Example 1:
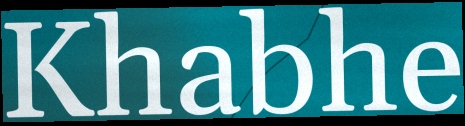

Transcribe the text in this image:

Khabhe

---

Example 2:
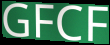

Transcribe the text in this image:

GFCF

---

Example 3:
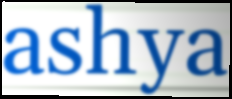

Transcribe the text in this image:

ashya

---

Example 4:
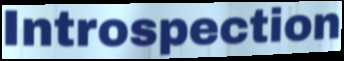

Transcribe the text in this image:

Introspection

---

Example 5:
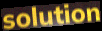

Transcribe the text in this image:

solution